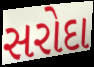
સરોદા